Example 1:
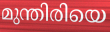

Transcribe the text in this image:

മുന്തിരിയെ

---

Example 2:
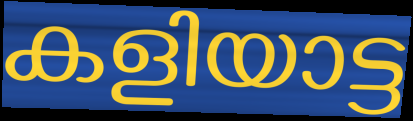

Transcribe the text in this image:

കളിയാട്ട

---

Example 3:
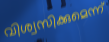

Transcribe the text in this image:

വിശ്വസിക്കുമെന്ന്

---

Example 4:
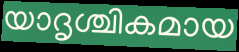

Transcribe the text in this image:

യാദൃശ്ചികമായ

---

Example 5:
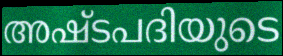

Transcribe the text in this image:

അഷ്ടപദിയുടെ